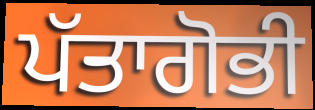
ਪੱਤਾਗੋਭੀ